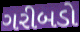
ગરીબડો